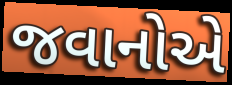
જવાનોએ